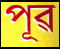
পূৱ